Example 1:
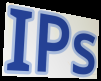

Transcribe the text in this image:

IPs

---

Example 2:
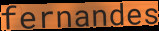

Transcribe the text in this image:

fernandes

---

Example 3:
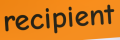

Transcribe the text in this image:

recipient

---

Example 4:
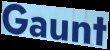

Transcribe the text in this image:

Gaunt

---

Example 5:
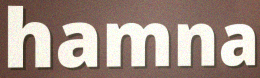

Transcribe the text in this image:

hamna